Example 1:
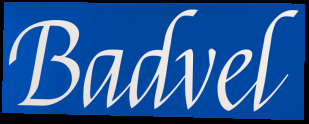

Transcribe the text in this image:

Badvel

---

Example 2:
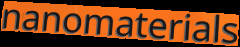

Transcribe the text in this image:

nanomaterials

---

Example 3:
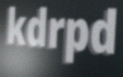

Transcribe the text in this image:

kdrpd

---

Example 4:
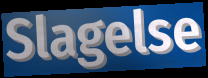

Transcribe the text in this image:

Slagelse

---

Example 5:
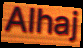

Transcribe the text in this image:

Alhaj